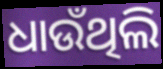
ଧାଉଁଥିଲି